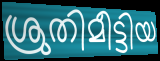
ശ്രുതിമീട്ടിയ